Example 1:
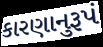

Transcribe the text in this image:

કારણાનુરૂપં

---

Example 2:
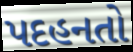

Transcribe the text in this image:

પદહનતો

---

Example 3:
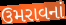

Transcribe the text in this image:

ઉમરાવનાં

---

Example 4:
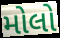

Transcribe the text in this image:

મોલો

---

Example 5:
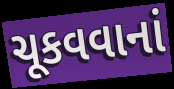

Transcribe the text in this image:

ચૂકવવાનાં